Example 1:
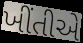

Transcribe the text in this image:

ખીંતીએ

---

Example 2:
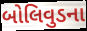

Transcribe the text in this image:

બોલિવુડના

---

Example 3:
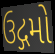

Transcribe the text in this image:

ઉદ્ગમો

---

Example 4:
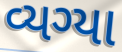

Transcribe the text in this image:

વ્યગ્યા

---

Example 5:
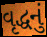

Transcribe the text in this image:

વૃદ્ધનું